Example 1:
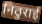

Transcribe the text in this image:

निठुराई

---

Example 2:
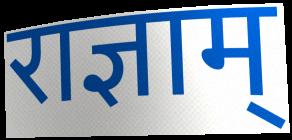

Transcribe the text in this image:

राज्ञाम्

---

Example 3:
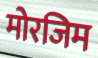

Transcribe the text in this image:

मोरजिम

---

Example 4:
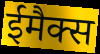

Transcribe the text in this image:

ईमैक्स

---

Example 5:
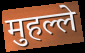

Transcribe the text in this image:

मुहल्ले